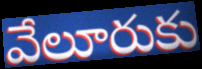
వేలూరుకు